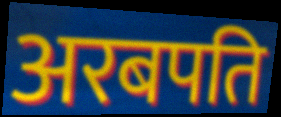
अरबपति